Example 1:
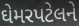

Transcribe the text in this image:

ઘેમરપટેલને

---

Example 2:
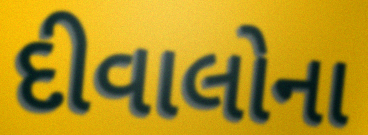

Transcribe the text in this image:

દીવાલોના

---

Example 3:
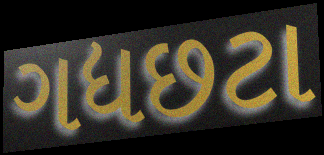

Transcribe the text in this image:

ગદ્યછટા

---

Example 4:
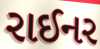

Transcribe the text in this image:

રાઈનર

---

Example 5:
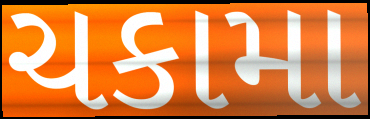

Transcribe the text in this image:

ચકામા